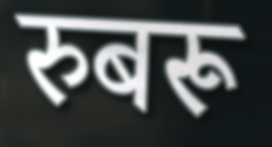
रुबरू